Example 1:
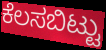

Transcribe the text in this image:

ಕೆಲಸಬಿಟ್ಟು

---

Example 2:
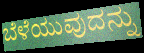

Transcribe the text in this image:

ಬೆಳೆಯುವುದನ್ನು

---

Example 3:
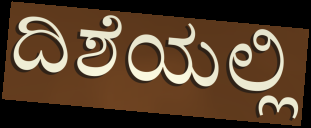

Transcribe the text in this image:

ದಿಶೆಯಲ್ಲಿ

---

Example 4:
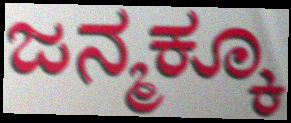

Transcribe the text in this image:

ಜನ್ಮಕ್ಕೂ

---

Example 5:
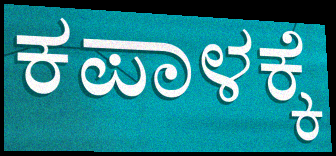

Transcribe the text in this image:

ಕಪಾಳಕ್ಕೆ